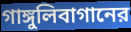
গাঙ্গুলিবাগানের